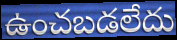
ఉంచబడలేదు